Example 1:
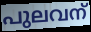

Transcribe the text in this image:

പുലവന്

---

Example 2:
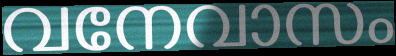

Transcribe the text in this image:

വനേവാസം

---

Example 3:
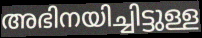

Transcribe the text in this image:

അഭിനയിച്ചിട്ടുള്ള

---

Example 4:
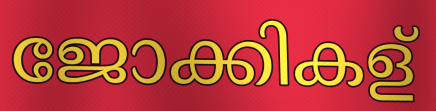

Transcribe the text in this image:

ജോക്കികള്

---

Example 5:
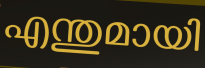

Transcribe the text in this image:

എന്തുമായി